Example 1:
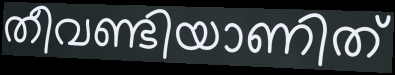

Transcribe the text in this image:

തീവണ്ടിയാണിത്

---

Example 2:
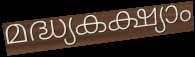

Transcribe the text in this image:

മദ്ധ്യകക്ഷ്യാം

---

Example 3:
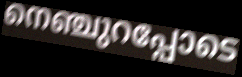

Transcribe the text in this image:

നെഞ്ചുറപ്പോടെ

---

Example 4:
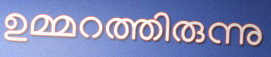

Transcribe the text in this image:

ഉമ്മറത്തിരുന്നു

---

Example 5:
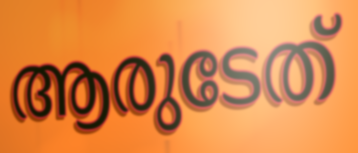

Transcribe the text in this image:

ആരുടേത്